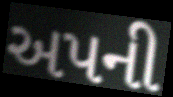
અપની